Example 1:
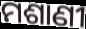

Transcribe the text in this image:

ମଶାଣୀ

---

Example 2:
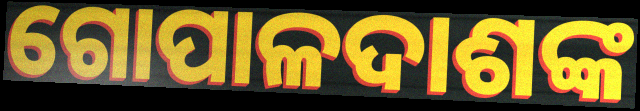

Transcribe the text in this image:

ଗୋପାଳଦାଶଙ୍କ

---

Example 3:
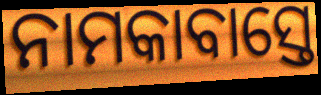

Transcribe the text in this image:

ନାମକାବାସ୍ତେ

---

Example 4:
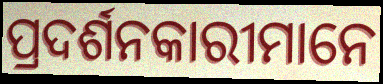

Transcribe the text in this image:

ପ୍ରଦର୍ଶନକାରୀମାନେ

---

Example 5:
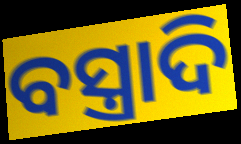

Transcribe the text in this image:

ବସ୍ତ୍ରାଦି